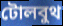
টোলবুথ